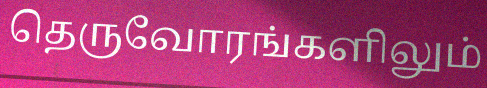
தெருவோரங்களிலும்